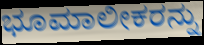
ಭೂಮಾಲೀಕರನ್ನು